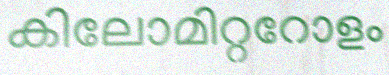
കിലോമിറ്ററോളം